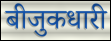
बीजुकधारी